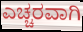
ಎಚ್ಚರವಾಗಿ